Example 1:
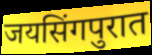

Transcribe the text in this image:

जयसिंगपुरात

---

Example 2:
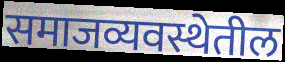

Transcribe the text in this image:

समाजव्यवस्थेतील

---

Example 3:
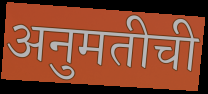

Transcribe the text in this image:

अनुमतीची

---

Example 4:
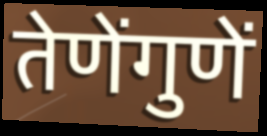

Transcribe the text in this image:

तेणेंगुणें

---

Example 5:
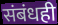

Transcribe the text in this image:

संबंधही